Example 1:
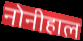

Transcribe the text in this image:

नोनीहाल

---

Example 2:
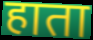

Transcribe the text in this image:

हाता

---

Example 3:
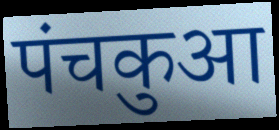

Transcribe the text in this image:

पंचकुआ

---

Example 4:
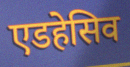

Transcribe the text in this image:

एडहेसिव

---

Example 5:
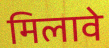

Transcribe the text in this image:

मिलावे